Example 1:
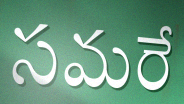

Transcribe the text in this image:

సమరే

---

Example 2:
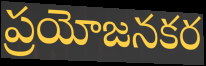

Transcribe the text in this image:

ప్రయోజనకర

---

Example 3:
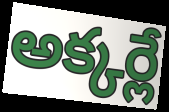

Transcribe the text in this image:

అక్కర్లే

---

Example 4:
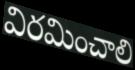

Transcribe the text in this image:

విరమించాలి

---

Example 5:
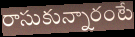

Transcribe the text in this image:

రాసుకున్నారంటే